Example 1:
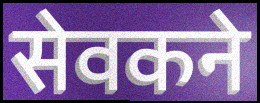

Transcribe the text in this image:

सेवकने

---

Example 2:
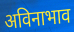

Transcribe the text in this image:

अविनाभाव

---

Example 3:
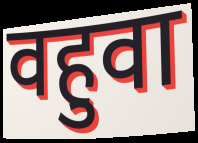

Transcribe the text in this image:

वहुवा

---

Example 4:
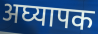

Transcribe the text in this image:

अघ्यापक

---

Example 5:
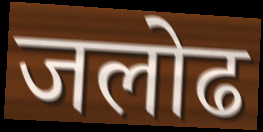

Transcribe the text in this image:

जलोढ